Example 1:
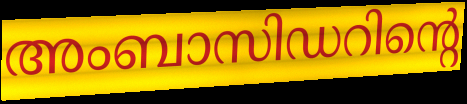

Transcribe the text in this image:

അംബാസിഡറിന്റെ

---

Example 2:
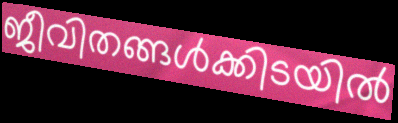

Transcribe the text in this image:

ജീവിതങ്ങൾക്കിടയിൽ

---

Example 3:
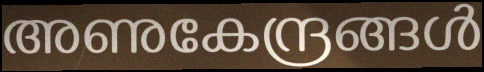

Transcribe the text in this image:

അണുകേന്ദ്രങ്ങൾ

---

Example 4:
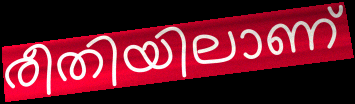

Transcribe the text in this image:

രീതിയിലാണ്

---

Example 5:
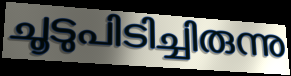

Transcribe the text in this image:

ചൂടുപിടിച്ചിരുന്നു